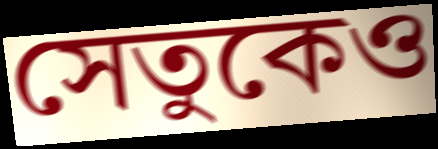
সেতুকেও